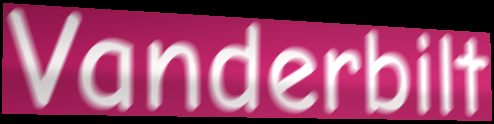
Vanderbilt